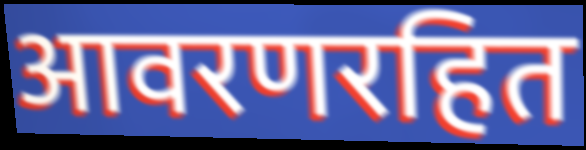
आवरणरहित